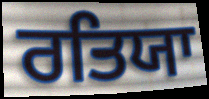
ਰਤਿਯਾ